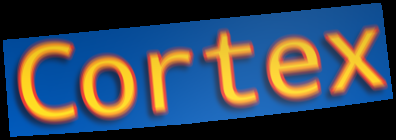
Cortex